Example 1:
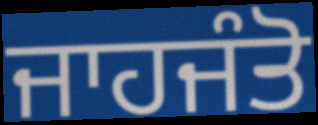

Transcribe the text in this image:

ਜਾਹਜੰਤੋ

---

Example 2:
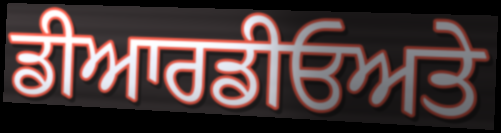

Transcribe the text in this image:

ਡੀਆਰਡੀਓਅਤੇ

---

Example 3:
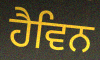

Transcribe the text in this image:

ਹੈਵਿਨ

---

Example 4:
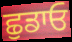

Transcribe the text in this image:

ਛੁਡਾਓ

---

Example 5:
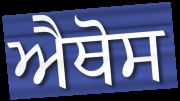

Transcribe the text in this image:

ਐਥੋਸ